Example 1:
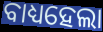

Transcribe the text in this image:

ବାଧ୍ୟହେଲା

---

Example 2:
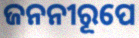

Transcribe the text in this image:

ଜନନୀରୂପେ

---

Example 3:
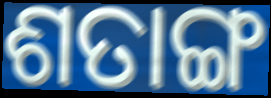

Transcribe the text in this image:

ଶତାଙ୍ଗ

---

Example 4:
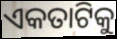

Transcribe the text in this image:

ଏକତାଟିକୁ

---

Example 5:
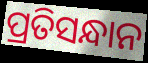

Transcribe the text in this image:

ପ୍ରତିସନ୍ଧାନ